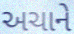
અચાને